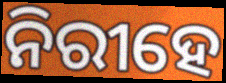
ନିରୀହେ